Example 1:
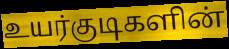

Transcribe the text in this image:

உயர்குடிகளின்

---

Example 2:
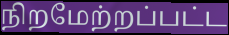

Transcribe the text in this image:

நிறமேற்றப்பட்ட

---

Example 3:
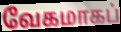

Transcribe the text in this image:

வேகமாகப்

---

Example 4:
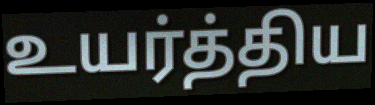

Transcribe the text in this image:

உயர்த்திய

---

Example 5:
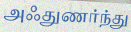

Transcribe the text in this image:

அஃதுணர்ந்து